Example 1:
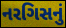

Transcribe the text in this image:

નરગિસનું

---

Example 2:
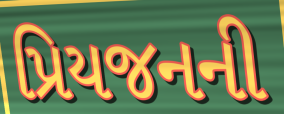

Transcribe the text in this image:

પ્રિયજનની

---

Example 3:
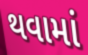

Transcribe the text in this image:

થવામાં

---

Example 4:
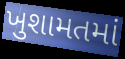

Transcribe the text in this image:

ખુશામતમાં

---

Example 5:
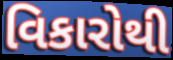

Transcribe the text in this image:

વિકારોથી